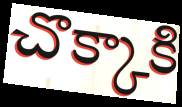
చొక్కాకి